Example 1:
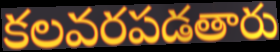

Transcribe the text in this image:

కలవరపడతారు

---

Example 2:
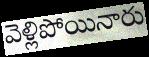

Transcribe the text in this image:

వెళ్లిపోయినారు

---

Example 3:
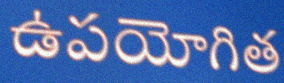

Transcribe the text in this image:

ఉపయోగిత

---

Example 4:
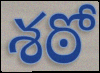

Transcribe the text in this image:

శఠో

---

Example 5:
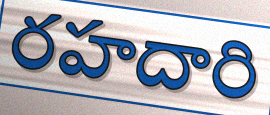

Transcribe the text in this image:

రహదారి